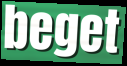
beget